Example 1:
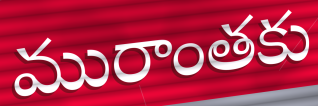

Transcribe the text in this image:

మురాంతకు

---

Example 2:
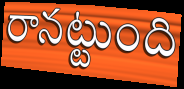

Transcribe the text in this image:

రానట్టుంది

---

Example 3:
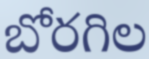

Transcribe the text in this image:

బోరగిల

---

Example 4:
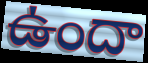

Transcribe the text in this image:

ఉందా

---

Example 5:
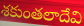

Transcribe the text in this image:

శకుంతలాదేవి